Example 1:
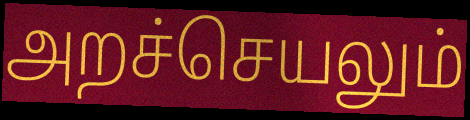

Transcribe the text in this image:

அறச்செயலும்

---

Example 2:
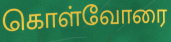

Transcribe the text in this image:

கொள்வோரை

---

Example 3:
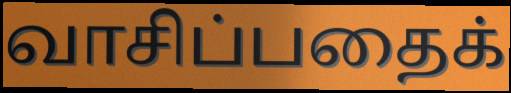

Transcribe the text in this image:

வாசிப்பதைக்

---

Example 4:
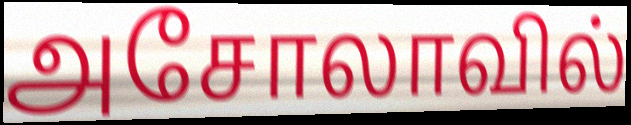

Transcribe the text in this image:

அசோலாவில்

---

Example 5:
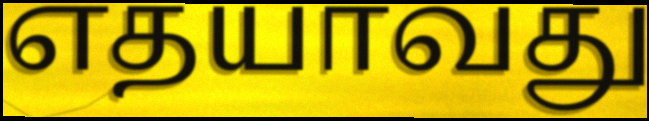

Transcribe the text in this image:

எதயாவது